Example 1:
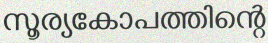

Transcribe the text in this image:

സൂര്യകോപത്തിന്റെ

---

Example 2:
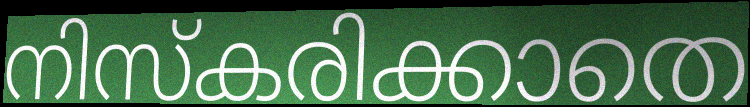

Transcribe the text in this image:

നിസ്കരിക്കാതെ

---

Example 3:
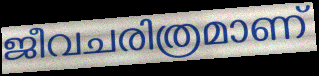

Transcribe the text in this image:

ജീവചരിത്രമാണ്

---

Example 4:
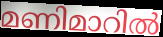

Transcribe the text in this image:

മണിമാറിൽ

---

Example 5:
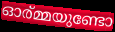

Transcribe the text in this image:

ഓര്മ്മയുണ്ടോ